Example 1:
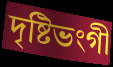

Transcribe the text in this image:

দৃষ্টিভংগী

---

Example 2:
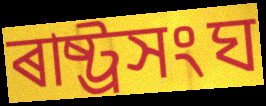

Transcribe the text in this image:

ৰাষ্ট্ৰসংঘ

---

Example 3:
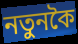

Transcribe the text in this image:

নতুনকৈ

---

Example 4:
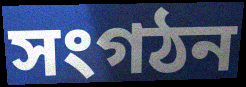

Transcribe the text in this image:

সংগঠন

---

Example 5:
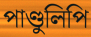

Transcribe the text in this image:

পাণ্ডুলিপি